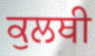
ਕੁਲਥੀ